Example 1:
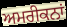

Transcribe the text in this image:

ਅਮਰੀਕਨਾਂ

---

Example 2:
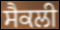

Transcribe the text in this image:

ਸੈਕਲੀ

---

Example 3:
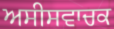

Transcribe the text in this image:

ਅਸੀਸਵਾਚਕ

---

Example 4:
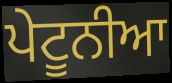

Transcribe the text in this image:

ਪੇਟੂਨੀਆ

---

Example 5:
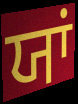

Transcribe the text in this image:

ਯਾਂ